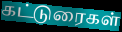
கட்டுரைகள்